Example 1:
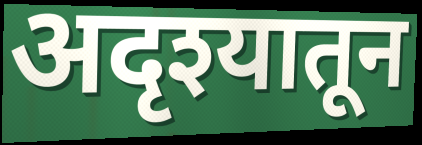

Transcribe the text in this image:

अदृश्यातून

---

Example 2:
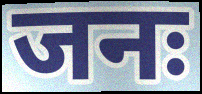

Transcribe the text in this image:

जनः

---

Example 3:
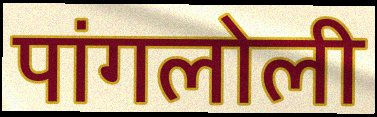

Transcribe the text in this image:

पांगलोली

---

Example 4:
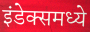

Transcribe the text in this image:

इंडेक्समध्ये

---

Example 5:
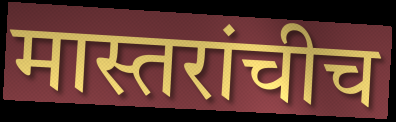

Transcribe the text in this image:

मास्तरांचीच